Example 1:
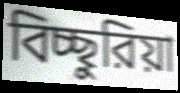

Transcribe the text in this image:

বিচ্ছুরিয়া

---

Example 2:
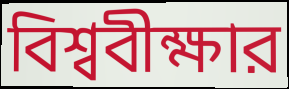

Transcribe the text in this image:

বিশ্ববীক্ষার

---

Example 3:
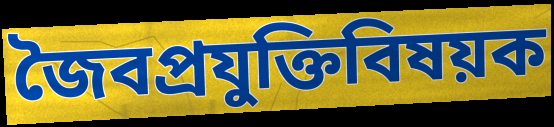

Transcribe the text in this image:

জৈবপ্রযুক্তিবিষয়ক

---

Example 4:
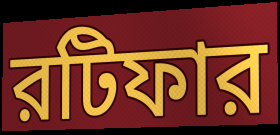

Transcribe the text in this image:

রটিফার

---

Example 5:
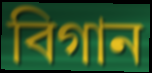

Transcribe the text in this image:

বিগান